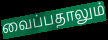
வைப்பதாலும்